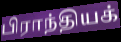
பிராந்தியக்